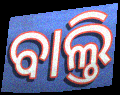
ବାଲ୍ତି